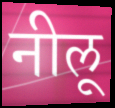
नीलू